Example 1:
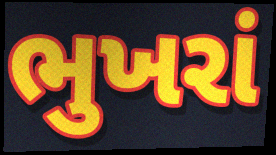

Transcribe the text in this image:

ભુખરાં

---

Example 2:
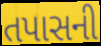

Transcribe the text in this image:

તપાસની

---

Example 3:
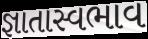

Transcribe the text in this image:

જ્ઞાતાસ્વભાવ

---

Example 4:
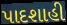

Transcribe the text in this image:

પાદશાહી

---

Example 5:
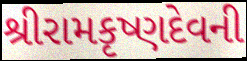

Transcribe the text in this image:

શ્રીરામકૃષ્ણદેવની